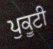
ਪੁਕੂਟੀ